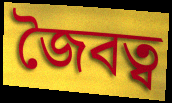
জৈবত্ব